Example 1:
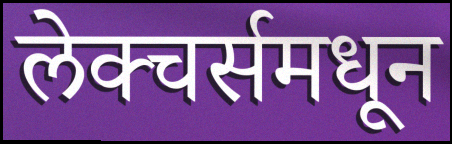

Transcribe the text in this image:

लेक्चर्समधून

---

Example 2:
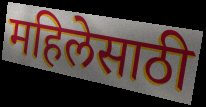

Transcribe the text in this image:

महिलेसाठी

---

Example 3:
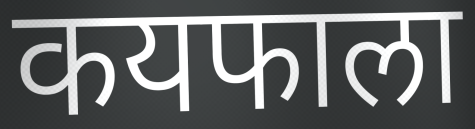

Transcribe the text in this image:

कयफाला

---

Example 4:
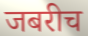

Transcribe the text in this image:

जबरीच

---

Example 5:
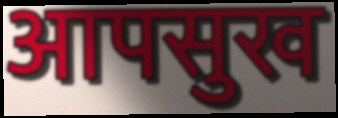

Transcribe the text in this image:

आपसुख